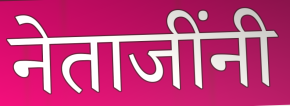
नेताजींनी